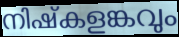
നിഷ്‌കളങ്കവും